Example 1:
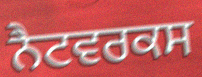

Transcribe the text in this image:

ਨੈਟਵਰਕਸ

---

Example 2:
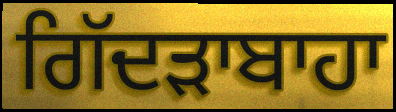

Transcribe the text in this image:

ਗਿੱਦੜਾਬਾਹਾ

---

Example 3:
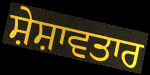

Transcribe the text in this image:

ਸ਼ੇਸ਼ਾਵਤਾਰ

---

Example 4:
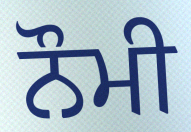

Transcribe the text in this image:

ਨੌਮੀ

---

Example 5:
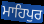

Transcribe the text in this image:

ਮਾਹਿਪੁਰ